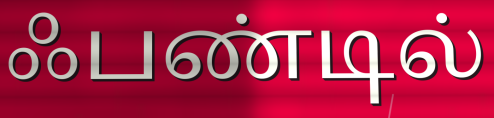
ஃபண்டில்